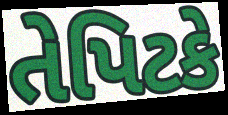
તેપિટકે